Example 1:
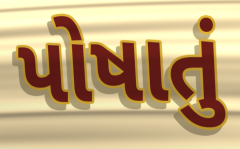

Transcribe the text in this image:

પોષાતું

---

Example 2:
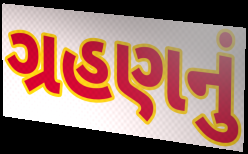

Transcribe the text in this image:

ગ્રહણનું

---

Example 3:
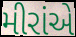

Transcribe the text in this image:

મીરાંએ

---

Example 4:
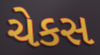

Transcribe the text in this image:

ચેકસ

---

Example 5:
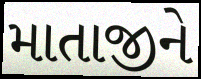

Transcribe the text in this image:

માતાજીને